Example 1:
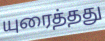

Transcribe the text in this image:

யுரைத்தது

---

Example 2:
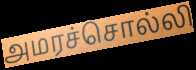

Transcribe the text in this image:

அமரச்சொல்லி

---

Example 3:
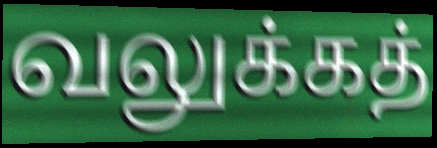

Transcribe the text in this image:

வலுக்கத்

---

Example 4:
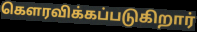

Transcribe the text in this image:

கௌரவிக்கப்படுகிறார்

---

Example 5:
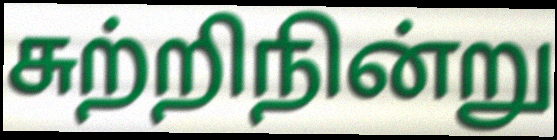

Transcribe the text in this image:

சுற்றிநின்று